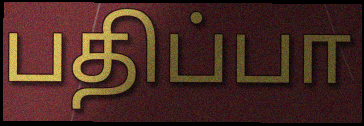
பதிப்பா